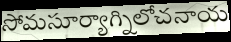
సోమసూర్యాగ్నిలోచనాయ